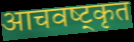
आचवष्ट्कृत